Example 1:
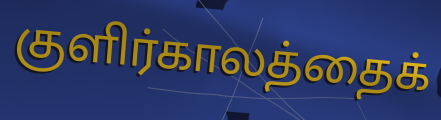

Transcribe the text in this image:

குளிர்காலத்தைக்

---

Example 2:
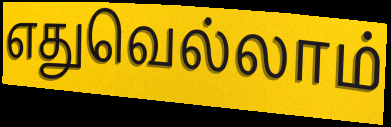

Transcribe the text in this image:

எதுவெல்லாம்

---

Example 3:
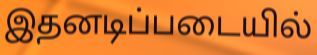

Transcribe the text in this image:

இதனடிப்படையில்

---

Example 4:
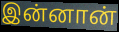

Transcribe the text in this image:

இன்னான்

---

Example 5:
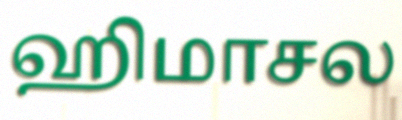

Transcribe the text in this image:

ஹிமாசல